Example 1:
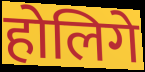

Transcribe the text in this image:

होलिगे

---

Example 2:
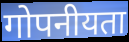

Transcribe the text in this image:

गोपनीयता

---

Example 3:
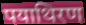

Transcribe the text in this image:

पयाथिरण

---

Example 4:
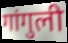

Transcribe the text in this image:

गांगुली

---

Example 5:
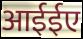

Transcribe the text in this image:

आईईए